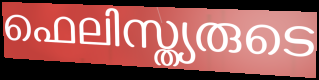
ഫെലിസ്ത്യരുടെ